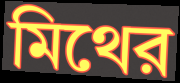
মিথের